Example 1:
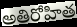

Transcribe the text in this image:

అతిరోహిత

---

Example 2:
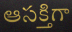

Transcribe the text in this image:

ఆసక్తిగా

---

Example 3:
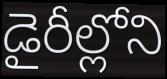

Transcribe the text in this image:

డైరీల్లోని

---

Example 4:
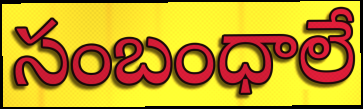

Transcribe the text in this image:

సంబంధాలే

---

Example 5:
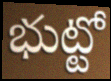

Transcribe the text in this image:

భుట్టో